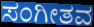
ಸಂಗೀತವ